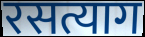
रसत्याग